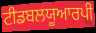
ਟੀਡਬਲਯੂਆਰਪੀ